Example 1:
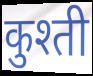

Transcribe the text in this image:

कुश्ती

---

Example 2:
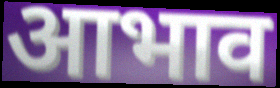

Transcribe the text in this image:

आभाव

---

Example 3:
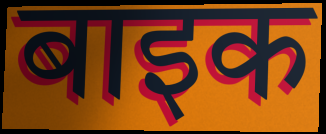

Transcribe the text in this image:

बाइक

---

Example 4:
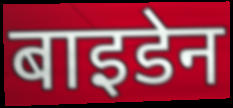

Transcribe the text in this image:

बाइडेन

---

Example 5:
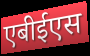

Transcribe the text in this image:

एबीईएस